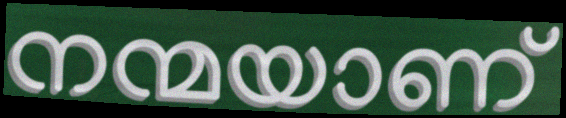
നന്മയാണ്